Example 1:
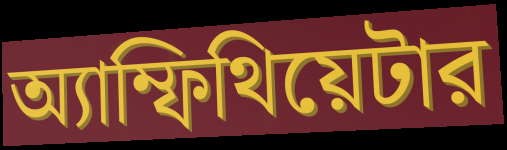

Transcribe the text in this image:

অ্যাম্ফিথিয়েটার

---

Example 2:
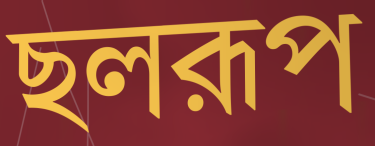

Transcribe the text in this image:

ছলরূপ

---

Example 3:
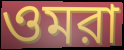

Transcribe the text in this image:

ওমরা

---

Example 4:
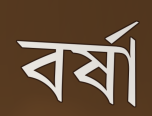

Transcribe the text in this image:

বর্ষা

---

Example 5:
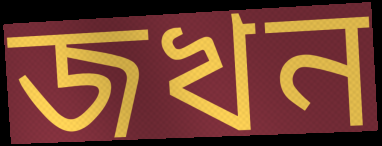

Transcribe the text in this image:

জখন